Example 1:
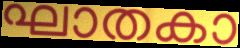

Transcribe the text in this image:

ഘാതകാ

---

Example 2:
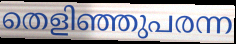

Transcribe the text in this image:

തെളിഞ്ഞുപരന്ന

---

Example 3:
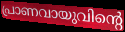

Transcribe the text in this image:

പ്രാണവായുവിന്റെ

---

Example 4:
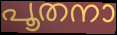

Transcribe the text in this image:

പൂതനാ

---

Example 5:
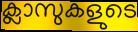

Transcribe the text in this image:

ക്ലാസുകളുടെ